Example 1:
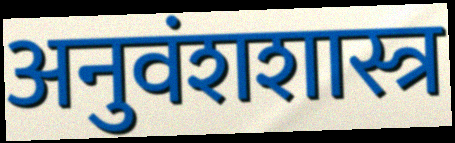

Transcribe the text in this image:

अनुवंशशास्त्र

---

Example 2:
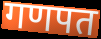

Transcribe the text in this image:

गणपत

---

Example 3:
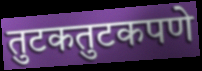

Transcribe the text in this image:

तुटकतुटकपणे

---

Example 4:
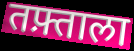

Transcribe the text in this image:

तफ़्ताला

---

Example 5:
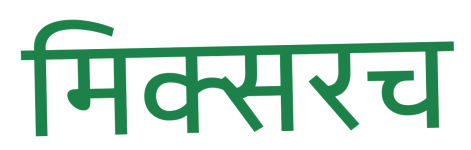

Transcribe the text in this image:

मिक्सरच